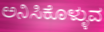
ಅನಿಸಿಕೊಳ್ಳುವ